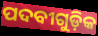
ପଦବୀଗୁଡ଼ିକ